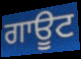
ਗਾਊਟ